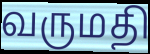
வருமதி